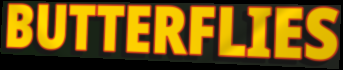
BUTTERFLIES